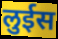
लुईस